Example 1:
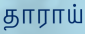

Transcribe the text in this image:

தாராய்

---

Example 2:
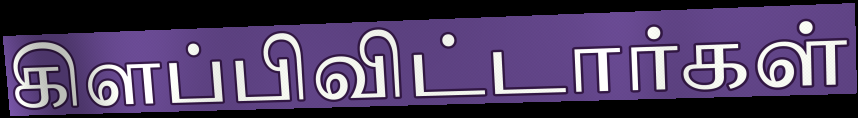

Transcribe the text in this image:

கிளப்பிவிட்டார்கள்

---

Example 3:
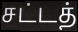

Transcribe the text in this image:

சட்டத்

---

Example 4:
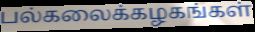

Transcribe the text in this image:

பல்கலைக்கழகங்கள்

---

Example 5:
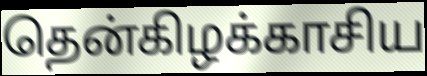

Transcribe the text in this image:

தென்கிழக்காசிய